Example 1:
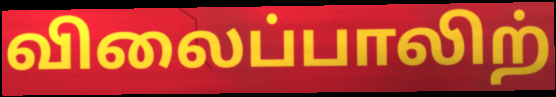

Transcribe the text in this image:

விலைப்பாலிற்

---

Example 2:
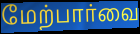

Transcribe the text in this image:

மேற்பார்வை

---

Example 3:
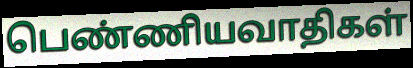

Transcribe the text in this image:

பெண்ணியவாதிகள்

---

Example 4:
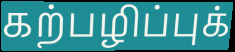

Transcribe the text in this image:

கற்பழிப்புக்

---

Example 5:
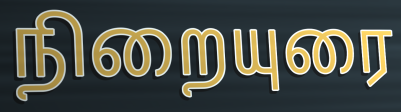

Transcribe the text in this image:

நிறையுரை